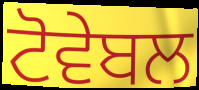
ਟੋਵੇਬਲ